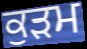
ਕੁੜਮ